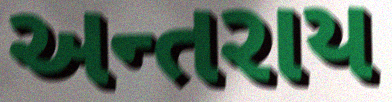
અન્તરાય